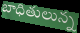
బాధితులున్న